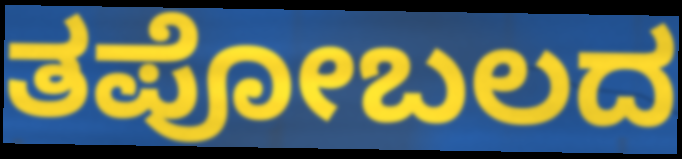
ತಪೋಬಲದ